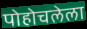
पोहोचलेला